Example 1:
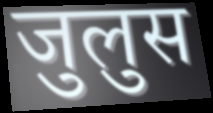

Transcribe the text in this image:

जुलुस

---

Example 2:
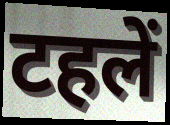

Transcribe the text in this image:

टहलें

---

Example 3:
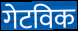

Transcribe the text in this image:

गेटविक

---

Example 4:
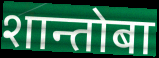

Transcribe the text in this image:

शान्तोबा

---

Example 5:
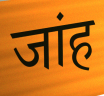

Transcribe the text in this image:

जांह